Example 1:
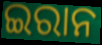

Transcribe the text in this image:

ଇରାନ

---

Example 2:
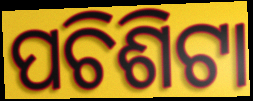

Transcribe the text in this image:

ପଚିଶିଟା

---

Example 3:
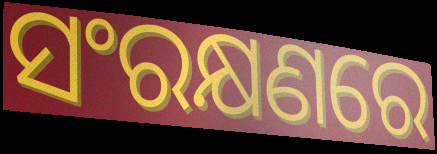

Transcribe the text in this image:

ସଂରକ୍ଷଣରେ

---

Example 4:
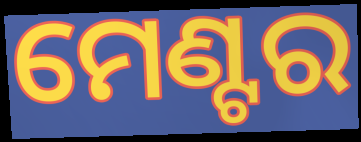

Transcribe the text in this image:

ମେଣ୍ଟର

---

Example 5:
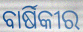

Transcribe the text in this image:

ବାର୍ଷିକୀର